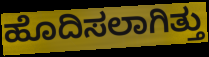
ಹೊದಿಸಲಾಗಿತ್ತು